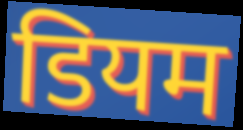
डियम